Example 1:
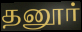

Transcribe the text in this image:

தனூர்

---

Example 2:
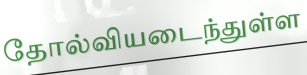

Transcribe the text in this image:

தோல்வியடைந்துள்ள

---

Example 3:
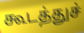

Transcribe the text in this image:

கூடத்துச்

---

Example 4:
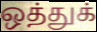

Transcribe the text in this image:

ஒத்துக்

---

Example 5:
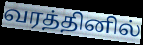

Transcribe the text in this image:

வரத்தினில்